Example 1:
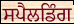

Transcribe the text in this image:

ਸਪੈਲਡਿੰਗ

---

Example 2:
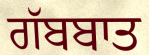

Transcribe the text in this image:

ਗੱਬਬਾਤ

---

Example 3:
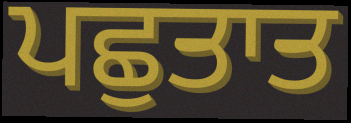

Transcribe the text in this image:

ਪਛੁਤਾਤ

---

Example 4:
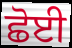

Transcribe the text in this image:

ਛੋਈ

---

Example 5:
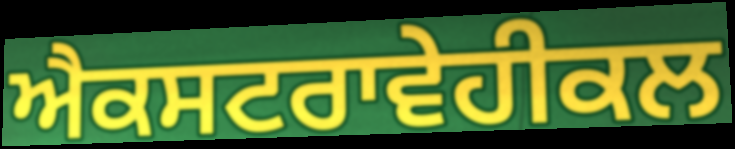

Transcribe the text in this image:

ਐਕਸਟਰਾਵੇਹੀਕਲ